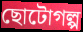
ছোটোগল্প